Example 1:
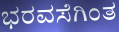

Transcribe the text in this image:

ಭರವಸೆಗಿಂತ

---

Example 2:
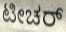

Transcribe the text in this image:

ಟೀಚರ್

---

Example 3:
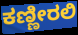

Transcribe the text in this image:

ಕಣ್ಣೀರಲಿ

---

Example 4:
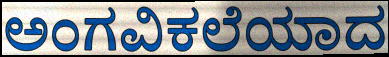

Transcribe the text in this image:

ಅಂಗವಿಕಲೆಯಾದ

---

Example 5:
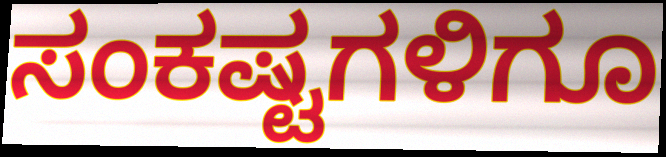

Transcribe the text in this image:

ಸಂಕಷ್ಟಗಳಿಗೂ